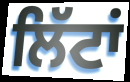
ਲਿੱਟਾਂ